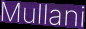
Mullani